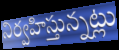
నిర్వహిస్తున్నట్లు